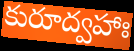
కురూద్వహాః